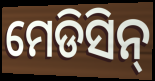
ମେଡିସିନ୍